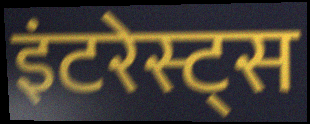
इंटरेस्ट्स